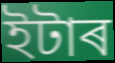
ইটাৰ